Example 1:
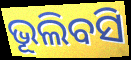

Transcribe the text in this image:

ଭୂଲିବସି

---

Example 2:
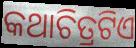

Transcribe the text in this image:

କଥାଚିତ୍ରଟିଏ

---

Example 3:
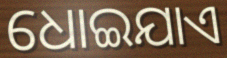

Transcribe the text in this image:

ଧୋଇଯାଏ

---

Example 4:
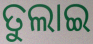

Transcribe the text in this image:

ତୁଲାଇ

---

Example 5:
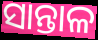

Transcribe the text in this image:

ସାନ୍ତାଳ